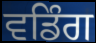
ਵਡਿੰਗ